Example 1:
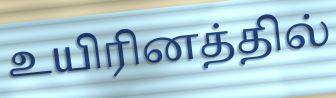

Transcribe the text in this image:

உயிரினத்தில்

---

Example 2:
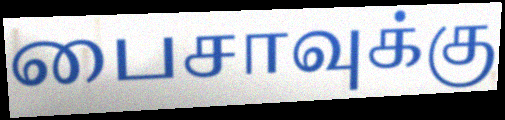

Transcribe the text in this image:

பைசாவுக்கு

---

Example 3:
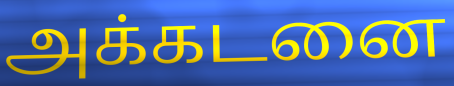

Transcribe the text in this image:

அக்கடனை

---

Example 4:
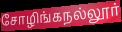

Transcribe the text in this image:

சோழிங்கநல்லூர்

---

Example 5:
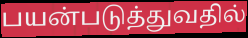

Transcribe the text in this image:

பயன்படுத்துவதில்